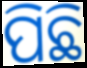
ପିଛି